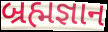
બ્રહ્મજ્ઞાન